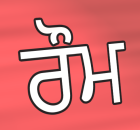
ਰੌਮ